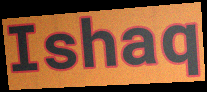
Ishaq